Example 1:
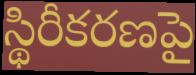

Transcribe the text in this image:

స్థిరీకరణపై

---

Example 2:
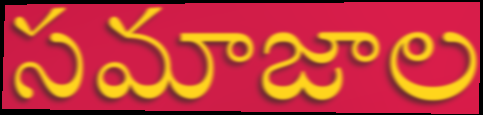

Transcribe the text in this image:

సమాజాల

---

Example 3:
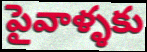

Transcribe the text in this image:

పైవాళ్ళకు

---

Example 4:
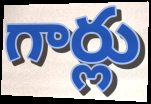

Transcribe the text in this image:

గార్లు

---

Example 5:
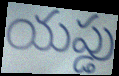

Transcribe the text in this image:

యప్డు